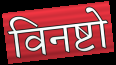
विनष्टो